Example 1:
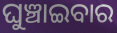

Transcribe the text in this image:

ଘୁଞ୍ଚାଇବାର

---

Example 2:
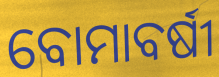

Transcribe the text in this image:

ବୋମାବର୍ଷୀ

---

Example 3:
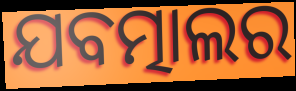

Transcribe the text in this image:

ଯବତ୍ମାଲର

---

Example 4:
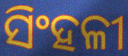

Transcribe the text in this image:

ସିଂହଳୀ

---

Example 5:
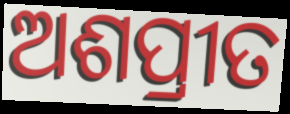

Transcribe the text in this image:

ଅଶପ୍ରୀତ